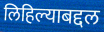
लिहिल्याबद्दल